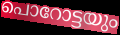
പൊറോട്ടയും